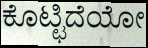
ಕೊಟ್ಟಿದೆಯೋ